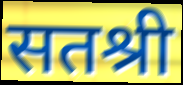
सतश्री